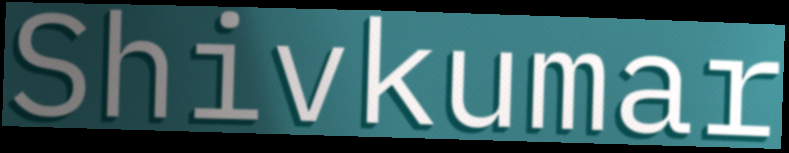
Shivkumar